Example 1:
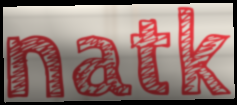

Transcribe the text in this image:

natk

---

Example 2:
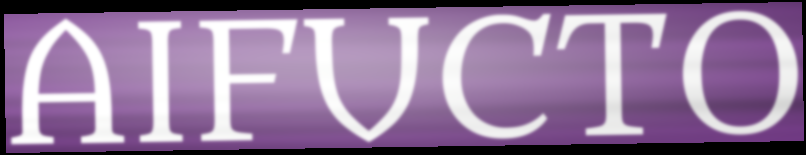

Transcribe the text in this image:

AIFUCTO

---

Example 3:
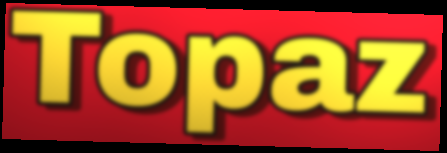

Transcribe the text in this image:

Topaz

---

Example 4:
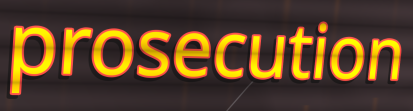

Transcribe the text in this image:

prosecution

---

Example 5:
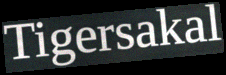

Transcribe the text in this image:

Tigersakal